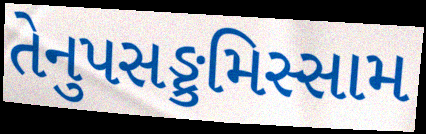
તેનુપસઙ્કમિસ્સામ